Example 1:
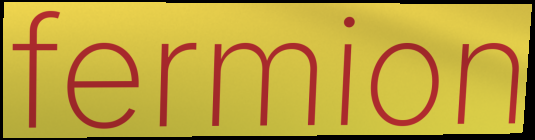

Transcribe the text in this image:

fermion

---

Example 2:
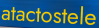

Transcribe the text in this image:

atactostele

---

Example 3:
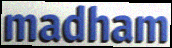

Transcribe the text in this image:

madham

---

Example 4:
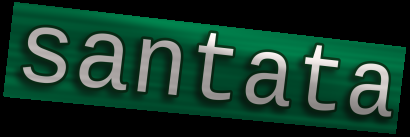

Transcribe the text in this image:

santata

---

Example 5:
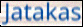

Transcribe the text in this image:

Jatakas